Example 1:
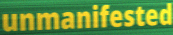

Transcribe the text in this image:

unmanifested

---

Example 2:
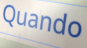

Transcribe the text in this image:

Quando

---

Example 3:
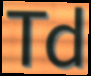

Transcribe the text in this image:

Td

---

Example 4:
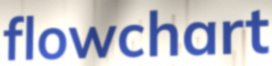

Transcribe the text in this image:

flowchart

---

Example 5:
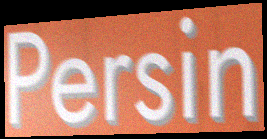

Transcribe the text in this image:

Persin